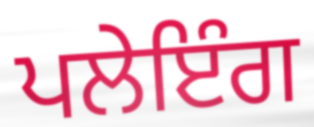
ਪਲੇਇੰਗ